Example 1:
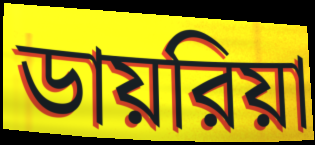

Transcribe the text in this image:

ডায়রিয়া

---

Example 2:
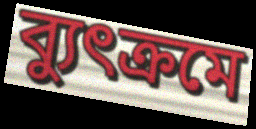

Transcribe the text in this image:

ব্যুৎক্রমে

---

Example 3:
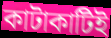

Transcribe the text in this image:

কাটাকাটিই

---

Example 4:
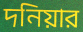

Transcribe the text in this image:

দনিয়ার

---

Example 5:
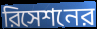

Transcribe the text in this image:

রিসেশনের